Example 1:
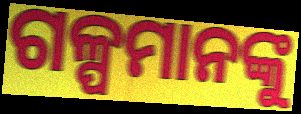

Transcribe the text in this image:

ଗଳ୍ପମାନଙ୍କୁ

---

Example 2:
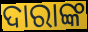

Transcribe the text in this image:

ଦାରାଙ୍କ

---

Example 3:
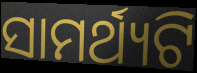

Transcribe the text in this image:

ସାମର୍ଥ୍ୟଟି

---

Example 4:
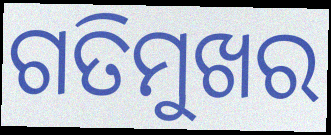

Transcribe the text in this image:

ଗତିମୁଖର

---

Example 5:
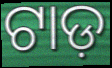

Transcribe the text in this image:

ଟାଡ଼